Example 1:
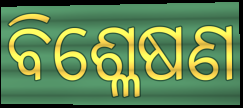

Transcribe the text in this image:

ବିଶ୍ଳେଷଣ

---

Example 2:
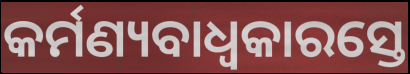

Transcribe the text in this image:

କର୍ମଣ୍ୟବାଧ୍ୱକାରସ୍ତେ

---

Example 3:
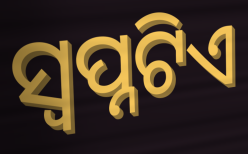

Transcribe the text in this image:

ସ୍ବପ୍ନଟିଏ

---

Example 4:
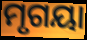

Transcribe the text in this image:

ମୃଗୟା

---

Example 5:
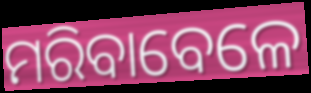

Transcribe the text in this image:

ମରିବାବେଳେ